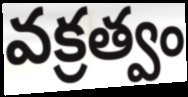
వక్రత్వం